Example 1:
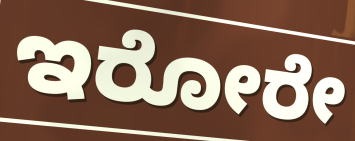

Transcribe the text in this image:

ಇರೋರೇ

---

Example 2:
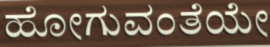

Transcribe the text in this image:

ಹೋಗುವಂತೆಯೇ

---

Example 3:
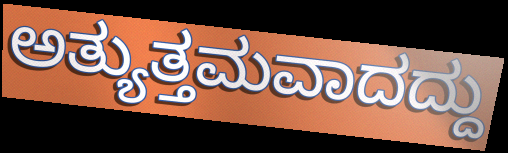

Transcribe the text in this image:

ಅತ್ಯುತ್ತಮವಾದದ್ದು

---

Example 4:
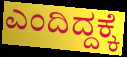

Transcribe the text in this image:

ಎಂದಿದ್ದಕ್ಕೆ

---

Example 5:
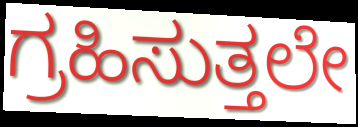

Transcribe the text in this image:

ಗ್ರಹಿಸುತ್ತಲೇ